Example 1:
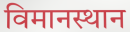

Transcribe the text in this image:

विमानस्थान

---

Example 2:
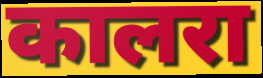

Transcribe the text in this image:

कालरा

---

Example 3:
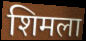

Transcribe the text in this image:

शिमला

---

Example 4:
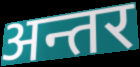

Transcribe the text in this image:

अन्तर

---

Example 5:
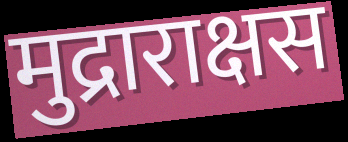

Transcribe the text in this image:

मुद्राराक्षस